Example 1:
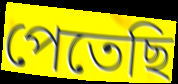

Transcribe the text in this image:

পেতেছি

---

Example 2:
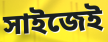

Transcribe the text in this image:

সাইজেই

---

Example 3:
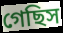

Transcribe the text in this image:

গেছিস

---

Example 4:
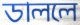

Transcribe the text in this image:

ডাললে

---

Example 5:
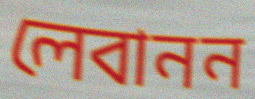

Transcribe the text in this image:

লেবানন